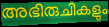
അഭിരുചികളും